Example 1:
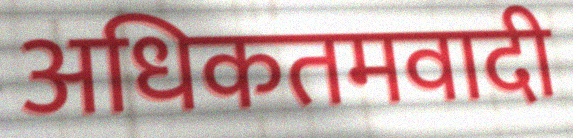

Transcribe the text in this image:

अधिकतमवादी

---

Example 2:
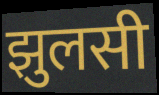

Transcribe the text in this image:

झुलसी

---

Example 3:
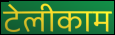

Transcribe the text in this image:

टेलीकाम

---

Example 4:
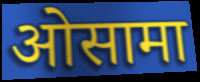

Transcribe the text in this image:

ओसामा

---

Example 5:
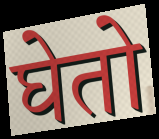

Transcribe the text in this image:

घेतो